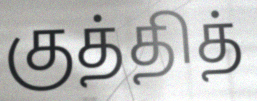
குத்தித்